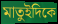
মাতুইদিকে